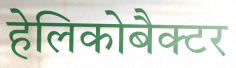
हेलिकोबैक्टर